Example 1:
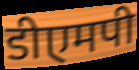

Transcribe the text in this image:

डीएमपी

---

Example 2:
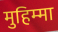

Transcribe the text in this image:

मुहिम्मा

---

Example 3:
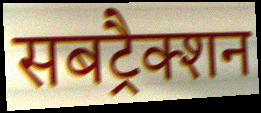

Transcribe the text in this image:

सबट्रैक्शन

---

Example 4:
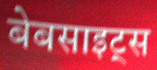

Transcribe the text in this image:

बेबसाइट्स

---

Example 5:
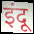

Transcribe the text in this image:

इंदू